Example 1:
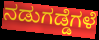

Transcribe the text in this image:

ನಡುಗಡ್ಡೆಗಳೆ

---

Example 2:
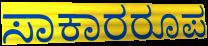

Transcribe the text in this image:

ಸಾಕಾರರೂಪ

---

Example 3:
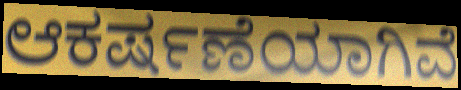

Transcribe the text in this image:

ಆಕರ್ಷಣೆಯಾಗಿವೆ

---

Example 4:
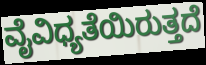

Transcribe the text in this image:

ವೈವಿಧ್ಯತೆಯಿರುತ್ತದೆ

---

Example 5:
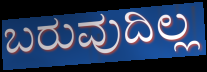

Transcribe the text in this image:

ಬರುವುದಿಲ್ಲ